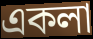
একলা